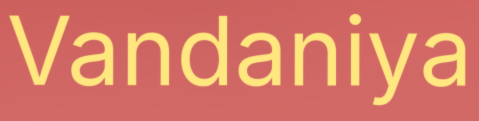
Vandaniya